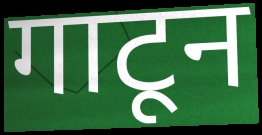
गाटून